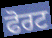
ਫੋਰਟ